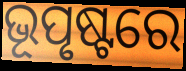
ଭୂପୃଷ୍ଟରେ